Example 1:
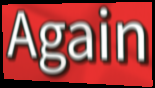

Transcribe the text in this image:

Again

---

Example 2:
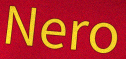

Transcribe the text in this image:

Nero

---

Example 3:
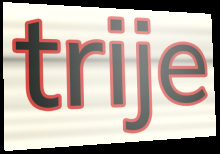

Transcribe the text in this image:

trije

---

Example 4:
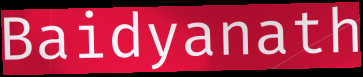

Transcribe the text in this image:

Baidyanath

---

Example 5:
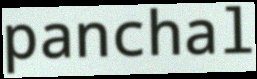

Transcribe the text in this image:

panchal